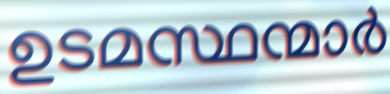
ഉടമസ്ഥന്മാർ